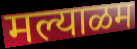
मल्याळम